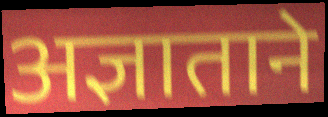
अज्ञाताने